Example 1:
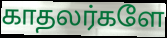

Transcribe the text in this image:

காதலர்களே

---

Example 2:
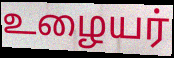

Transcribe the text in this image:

உழையர்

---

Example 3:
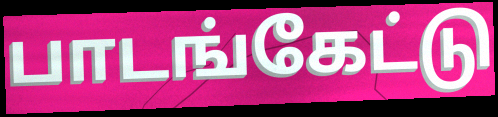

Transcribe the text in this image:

பாடங்கேட்டு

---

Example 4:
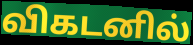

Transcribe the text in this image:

விகடனில்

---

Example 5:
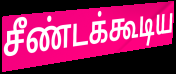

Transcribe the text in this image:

சீண்டக்கூடிய